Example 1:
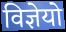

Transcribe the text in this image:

विज्ञेयो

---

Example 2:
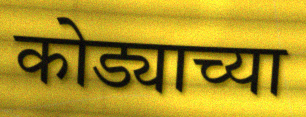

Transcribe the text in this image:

कोड्याच्या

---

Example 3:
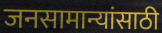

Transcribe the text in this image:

जनसामान्यांसाठी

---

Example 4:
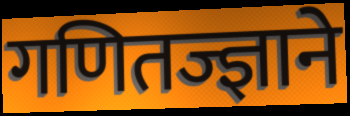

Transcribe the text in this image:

गणितज्ज्ञाने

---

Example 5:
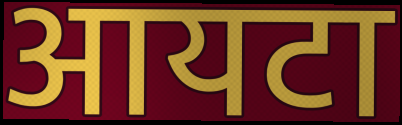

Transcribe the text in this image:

आयटा